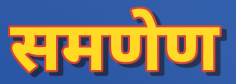
समणेण